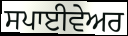
ਸਪਾਈਵੇਅਰ